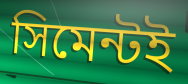
সিমেন্টই